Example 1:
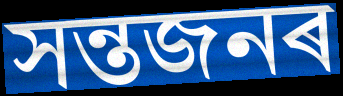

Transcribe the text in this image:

সন্তজনৰ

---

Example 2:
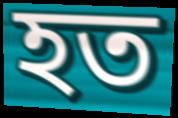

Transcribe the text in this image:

হত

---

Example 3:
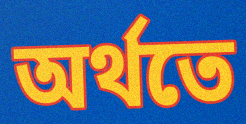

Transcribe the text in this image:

অৰ্থতে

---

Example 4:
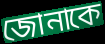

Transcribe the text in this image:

জোনাকে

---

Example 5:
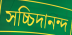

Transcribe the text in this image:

সচ্চিদানন্দ